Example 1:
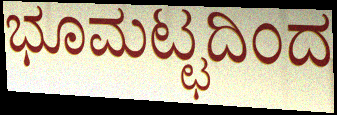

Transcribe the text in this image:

ಭೂಮಟ್ಟದಿಂದ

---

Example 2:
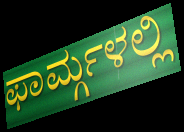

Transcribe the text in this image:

ಫಾರ್ಮ್ಗಳಲ್ಲಿ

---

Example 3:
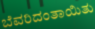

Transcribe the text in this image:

ಬೆವರಿದಂತಾಯಿತು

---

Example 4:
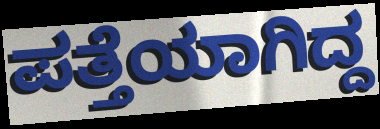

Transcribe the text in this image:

ಪತ್ತೆಯಾಗಿದ್ದ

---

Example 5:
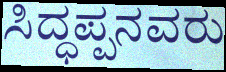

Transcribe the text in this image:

ಸಿದ್ಧಪ್ಪನವರು